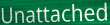
Unattached